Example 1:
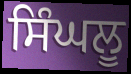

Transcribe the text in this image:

ਸਿੰਘਲੂ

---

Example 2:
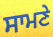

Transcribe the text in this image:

ਸਾਮਣੇ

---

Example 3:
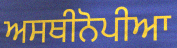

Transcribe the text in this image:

ਅਸਥੀਨੋਪੀਆ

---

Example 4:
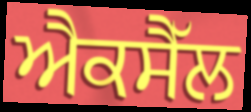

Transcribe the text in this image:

ਐਕਸੈੱਲ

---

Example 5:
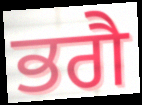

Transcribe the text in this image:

ਭਗੈ